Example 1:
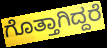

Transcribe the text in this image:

ಗೊತ್ತಾಗಿದ್ದರೆ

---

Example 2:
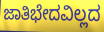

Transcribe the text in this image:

ಜಾತಿಭೇದವಿಲ್ಲದ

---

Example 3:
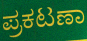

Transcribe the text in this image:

ಪ್ರಕಟಣಾ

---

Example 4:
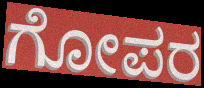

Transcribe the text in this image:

ಗೋಪರ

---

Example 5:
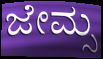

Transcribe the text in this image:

ಜೇಮ್ಸ